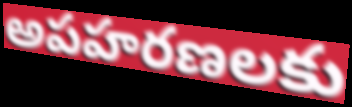
అపహరణలకు